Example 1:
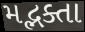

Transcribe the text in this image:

મદ્ભક્તા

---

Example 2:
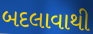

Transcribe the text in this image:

બદલાવાથી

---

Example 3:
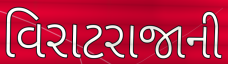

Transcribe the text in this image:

વિરાટરાજાની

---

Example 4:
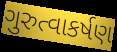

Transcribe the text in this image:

ગુરુત્વાકર્ષણ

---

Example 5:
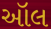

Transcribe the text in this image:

ઑલ